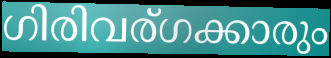
ഗിരിവര്ഗക്കാരും